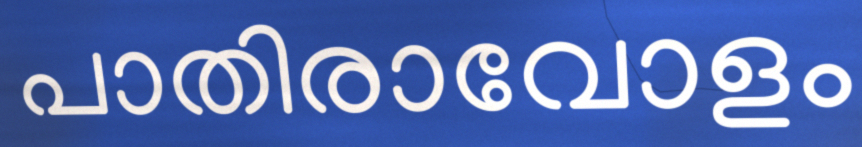
പാതിരാവോളം